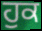
ਹੁਕ